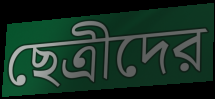
ছেত্রীদের